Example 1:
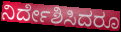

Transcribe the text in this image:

ನಿರ್ದೇಶಿಸಿದರೂ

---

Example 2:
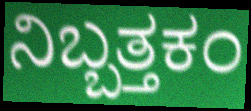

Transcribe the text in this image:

ನಿಬ್ಬತ್ತಕಂ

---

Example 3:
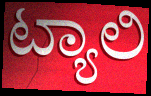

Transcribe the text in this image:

ಟ್ಯಾಲಿ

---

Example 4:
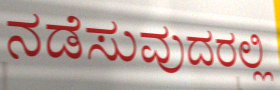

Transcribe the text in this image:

ನಡೆಸುವುದರಲ್ಲಿ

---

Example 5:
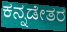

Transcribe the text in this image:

ಕನ್ನಡೇತರ